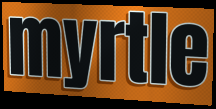
myrtle